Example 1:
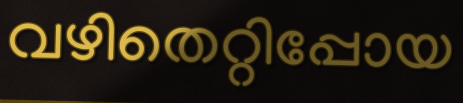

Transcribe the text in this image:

വഴിതെറ്റിപ്പോയ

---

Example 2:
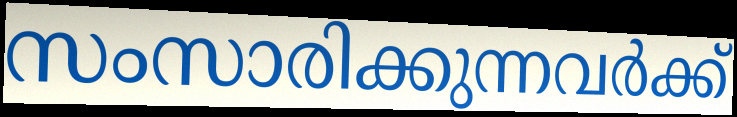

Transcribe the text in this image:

സംസാരിക്കുന്നവർക്ക്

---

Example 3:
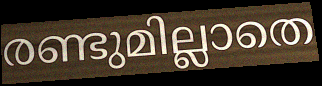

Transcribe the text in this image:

രണ്ടുമില്ലാതെ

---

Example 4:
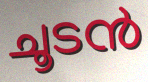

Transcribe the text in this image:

ചൂടൻ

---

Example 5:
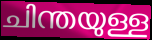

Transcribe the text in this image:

ചിന്തയുള്ള